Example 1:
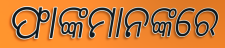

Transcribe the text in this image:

ଫାଙ୍କମାନଙ୍କରେ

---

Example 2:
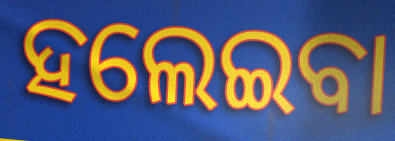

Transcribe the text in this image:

ହଲେଇବା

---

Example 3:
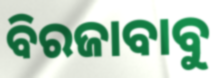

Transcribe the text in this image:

ବିରଜାବାବୁ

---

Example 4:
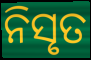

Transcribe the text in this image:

ନିସୃତ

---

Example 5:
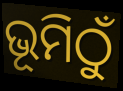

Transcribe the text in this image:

ଭୂମିଠୁଁ